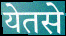
येतसे